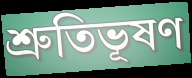
শ্রুতিভূষণ